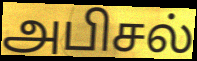
அபிசல்